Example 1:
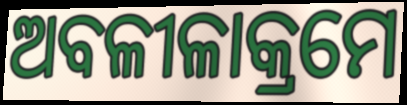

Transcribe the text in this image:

ଅବଳୀଳାକ୍ରମେ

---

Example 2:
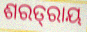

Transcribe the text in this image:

ଶରତ୍‌ରାୟ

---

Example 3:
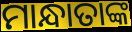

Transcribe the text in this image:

ମାନ୍ଧାତାଙ୍କ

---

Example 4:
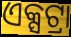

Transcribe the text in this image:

ଏକ୍ସଟ୍ରା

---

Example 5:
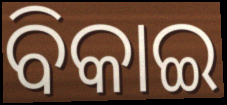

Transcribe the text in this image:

ବିକାଇ